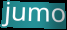
jumo